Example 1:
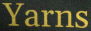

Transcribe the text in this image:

Yarns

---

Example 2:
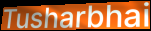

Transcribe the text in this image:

Tusharbhai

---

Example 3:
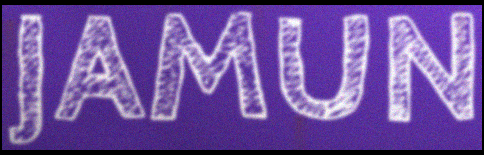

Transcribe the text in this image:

JAMUN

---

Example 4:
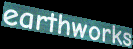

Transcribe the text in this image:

earthworks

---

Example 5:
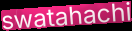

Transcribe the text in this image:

swatahachi